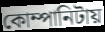
কোম্পানিটায়